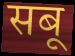
सबू